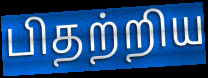
பிதற்றிய